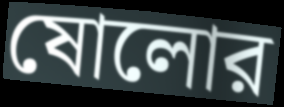
ষোলোর